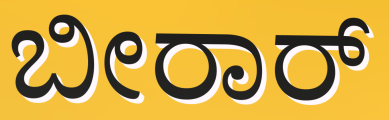
ಬೀರಾರ್